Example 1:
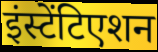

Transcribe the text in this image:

इंस्टेंटिएशन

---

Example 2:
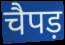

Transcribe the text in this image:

चैपड़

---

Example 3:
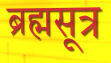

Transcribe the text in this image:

ब्रह्मसूत्र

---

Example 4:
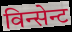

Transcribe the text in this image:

विन्सेन्ट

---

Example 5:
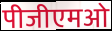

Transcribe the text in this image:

पीजीएमओ